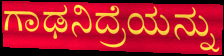
ಗಾಢನಿದ್ರೆಯನ್ನು